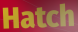
Hatch